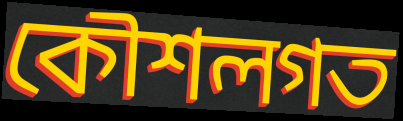
কৌশলগত